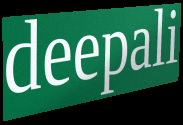
deepali